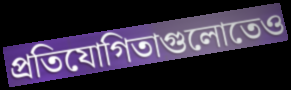
প্রতিযোগিতাগুলোতেও